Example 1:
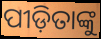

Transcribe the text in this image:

ପୀଡ଼ିତାଙ୍କୁ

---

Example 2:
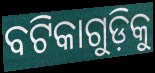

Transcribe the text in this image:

ବଟିକାଗୁଡ଼ିକୁ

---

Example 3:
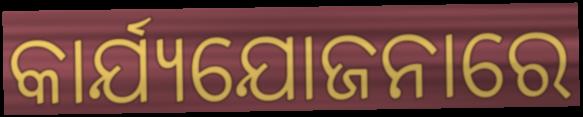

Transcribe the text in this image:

କାର୍ଯ୍ୟଯୋଜନାରେ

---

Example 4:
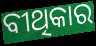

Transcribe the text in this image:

ବୀଥିକାର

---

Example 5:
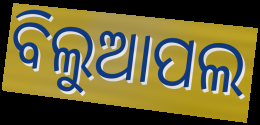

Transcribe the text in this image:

ବିଲୁଆପଲ